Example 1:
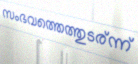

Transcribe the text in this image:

സംഭവത്തെത്തുടര്ന്ന്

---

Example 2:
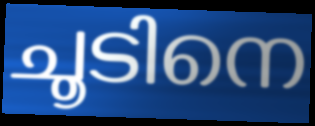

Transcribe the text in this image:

ചൂടിനെ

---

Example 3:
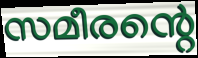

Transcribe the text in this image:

സമീരന്റെ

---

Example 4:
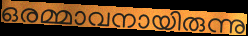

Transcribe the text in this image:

ഒരമ്മാവനായിരുന്നു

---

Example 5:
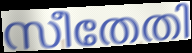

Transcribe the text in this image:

സീതേതി